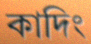
কাদিং